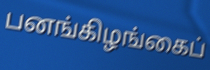
பனங்கிழங்கைப்